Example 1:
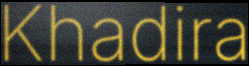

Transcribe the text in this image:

Khadira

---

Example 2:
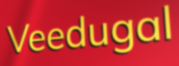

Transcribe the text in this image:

Veedugal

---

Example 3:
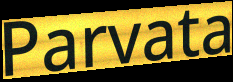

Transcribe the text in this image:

Parvata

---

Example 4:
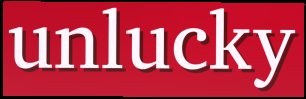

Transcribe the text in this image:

unlucky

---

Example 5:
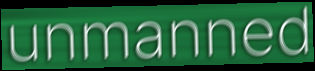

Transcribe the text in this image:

unmanned